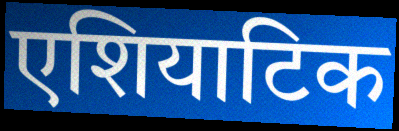
एशियाटिक